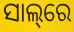
ସାଲ୍‌ରେ